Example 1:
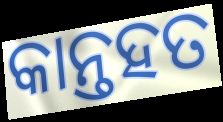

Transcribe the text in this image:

କାନ୍ତହତ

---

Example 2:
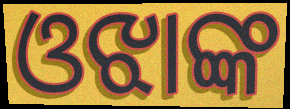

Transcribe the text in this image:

ଓଝାଙ୍କ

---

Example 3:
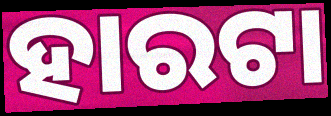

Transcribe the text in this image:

ହାରଟା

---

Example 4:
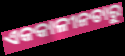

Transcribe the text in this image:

ଏକକାଳୀନତାରୁ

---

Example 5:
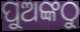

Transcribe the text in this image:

ପୁଅଙ୍କଠୁ